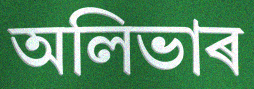
অলিভাৰ